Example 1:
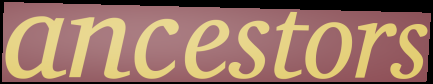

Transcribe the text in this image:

ancestors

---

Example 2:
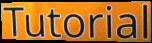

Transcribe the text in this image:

Tutorial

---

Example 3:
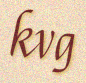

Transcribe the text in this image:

kvg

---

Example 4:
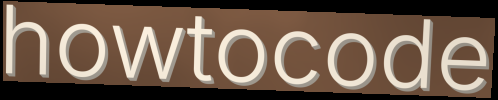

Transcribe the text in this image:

howtocode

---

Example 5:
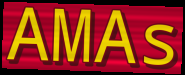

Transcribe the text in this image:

AMAs